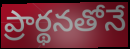
ప్రార్థనతోనే